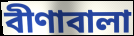
বীণাবালা